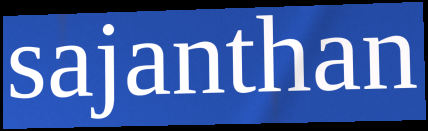
sajanthan